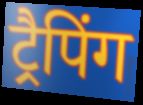
ट्रैपिंग